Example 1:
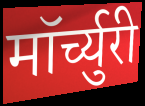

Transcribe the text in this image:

मॉर्च्युरी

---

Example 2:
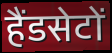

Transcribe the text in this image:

हैंडसेटों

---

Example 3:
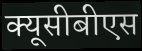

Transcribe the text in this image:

क्यूसीबीएस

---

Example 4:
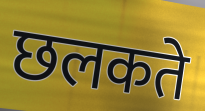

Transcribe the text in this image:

छलकते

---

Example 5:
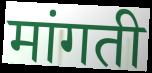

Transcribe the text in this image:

मांगती